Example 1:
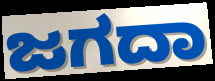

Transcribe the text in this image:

ಜಗದಾ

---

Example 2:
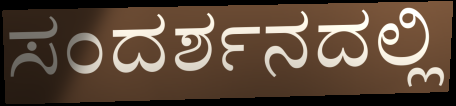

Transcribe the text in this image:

ಸಂದರ್ಶನದಲ್ಲಿ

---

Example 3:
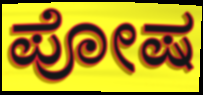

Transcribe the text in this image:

ಪೋಷ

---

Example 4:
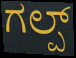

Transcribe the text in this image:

ಗಲ್ಪ್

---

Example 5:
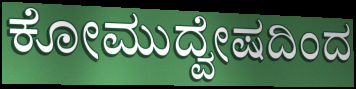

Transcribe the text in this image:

ಕೋಮುದ್ವೇಷದಿಂದ